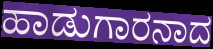
ಹಾಡುಗಾರನಾದ